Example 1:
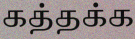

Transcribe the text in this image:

கத்தக்க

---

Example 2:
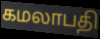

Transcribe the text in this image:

கமலாபதி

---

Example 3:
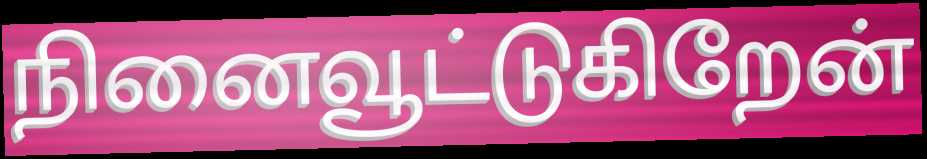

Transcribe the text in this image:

நினைவூட்டுகிறேன்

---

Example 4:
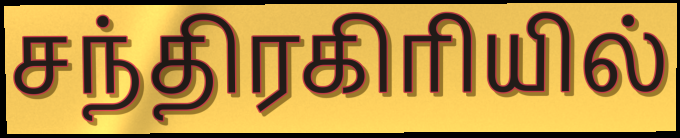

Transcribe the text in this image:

சந்திரகிரியில்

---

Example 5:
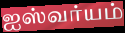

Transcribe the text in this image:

ஐஸ்வர்யம்